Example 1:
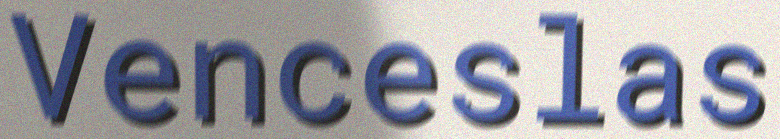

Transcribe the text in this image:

Venceslas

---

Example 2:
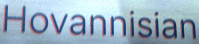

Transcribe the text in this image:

Hovannisian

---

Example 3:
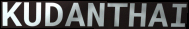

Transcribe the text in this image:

KUDANTHAI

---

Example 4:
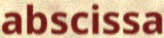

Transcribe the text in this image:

abscissa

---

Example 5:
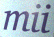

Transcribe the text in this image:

mii